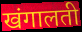
खंगालती